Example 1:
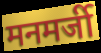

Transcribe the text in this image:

मनमर्जी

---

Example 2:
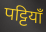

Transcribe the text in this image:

पट्टियाँ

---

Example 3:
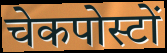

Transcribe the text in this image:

चेकपोस्टों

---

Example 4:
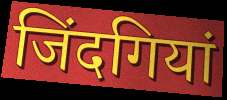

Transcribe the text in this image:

जिंदगियां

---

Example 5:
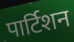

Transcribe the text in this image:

पार्टिशन